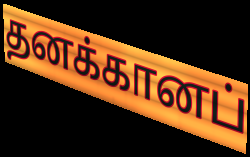
தனக்கானப்